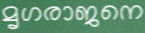
മൃഗരാജനെ